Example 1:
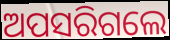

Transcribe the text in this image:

ଅପସରିଗଲେ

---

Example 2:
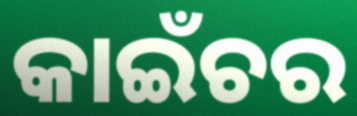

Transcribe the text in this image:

କାଇଁଚର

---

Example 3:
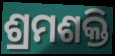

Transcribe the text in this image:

ଶ୍ରମଶକ୍ତି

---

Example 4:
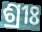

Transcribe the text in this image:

ଶ୍ରୀଃ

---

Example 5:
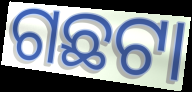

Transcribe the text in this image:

ଗଛଟା